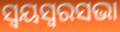
ସ୍ୱୟସ୍ୱରସଭା